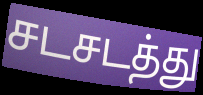
சடசடத்து